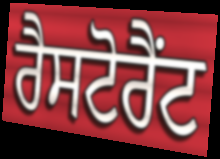
ਰੈਸਟੋਰੈਂਟ